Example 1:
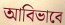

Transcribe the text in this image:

আবিভাবে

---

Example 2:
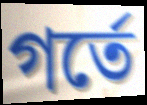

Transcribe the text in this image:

গর্তে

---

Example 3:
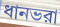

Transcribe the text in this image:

ধানভরা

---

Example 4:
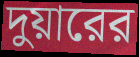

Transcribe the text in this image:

দুয়ারের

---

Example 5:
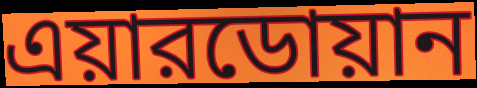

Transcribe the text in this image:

এয়ারডোয়ান